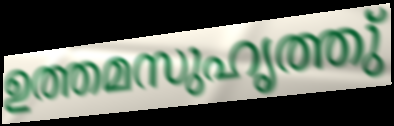
ഉത്തമസുഹൃത്തു്